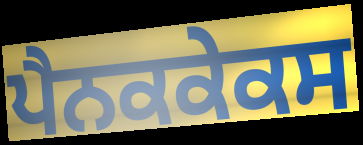
ਪੈਨਕਕੇਕਸ